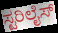
ಸ್ಟರಿಲೈಸ್